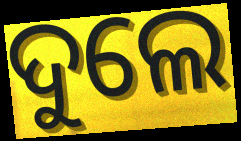
ଦୁଲେ